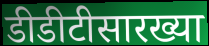
डीडीटीसारख्या